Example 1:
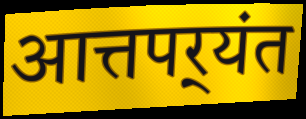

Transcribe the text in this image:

आत्तपर्यंत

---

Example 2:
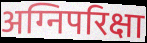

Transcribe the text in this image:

अग्निपरिक्षा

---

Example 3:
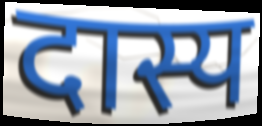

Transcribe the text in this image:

दास्य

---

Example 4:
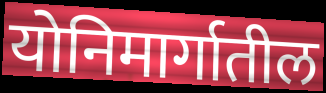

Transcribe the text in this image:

योनिमार्गातील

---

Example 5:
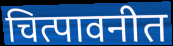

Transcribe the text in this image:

चित्पावनीत